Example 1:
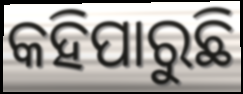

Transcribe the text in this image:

କହିପାରୁଛି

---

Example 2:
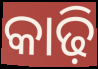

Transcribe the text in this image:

କାଢ଼ି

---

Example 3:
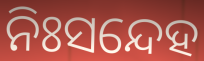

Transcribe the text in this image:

ନିଃସନ୍ଦେହ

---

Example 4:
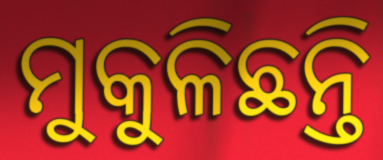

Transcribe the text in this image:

ମୁକୁଳିଛନ୍ତି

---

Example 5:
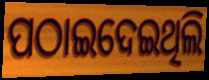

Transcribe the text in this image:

ପଠାଇଦେଇଥିଲି